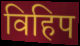
विहिप